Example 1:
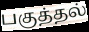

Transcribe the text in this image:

பகுத்தல்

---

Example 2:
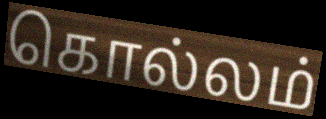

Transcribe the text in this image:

கொல்லம்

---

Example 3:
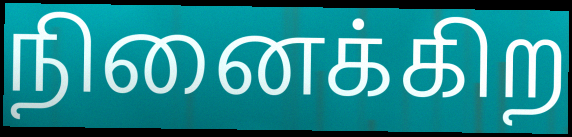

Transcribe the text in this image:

நினைக்கிற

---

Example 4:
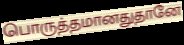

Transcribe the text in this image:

பொருத்தமானதுதானே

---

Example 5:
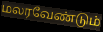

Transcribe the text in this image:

மலரவேண்டும்